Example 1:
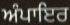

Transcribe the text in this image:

ਅੰਪਾਇਰ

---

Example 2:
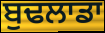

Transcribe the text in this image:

ਬੁਢਲਾਡਾ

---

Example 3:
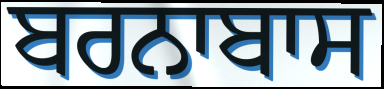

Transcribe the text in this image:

ਬਰਨਾਬਾਸ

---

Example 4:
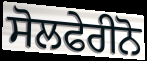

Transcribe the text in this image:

ਸੋਲਫੇਰੀਨੋ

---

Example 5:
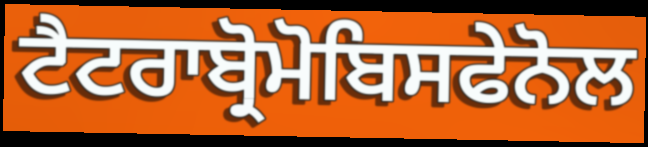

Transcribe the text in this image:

ਟੈਟਰਾਬ੍ਰੋਮੋਬਿਸਫੇਨੋਲ